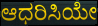
ಆಧರಿಸಿಯೇ